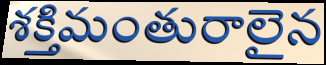
శక్తిమంతురాలైన